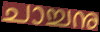
ചാച്ചനു